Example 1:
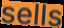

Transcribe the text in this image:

sells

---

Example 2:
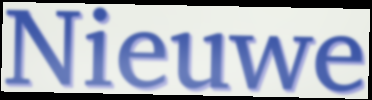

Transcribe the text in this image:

Nieuwe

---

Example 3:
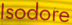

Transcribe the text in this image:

Isodore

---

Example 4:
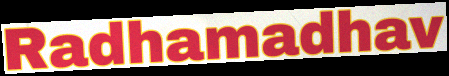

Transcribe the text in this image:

Radhamadhav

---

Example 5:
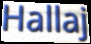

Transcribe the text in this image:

Hallaj